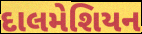
દાલમેશિયન